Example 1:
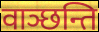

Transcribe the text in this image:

वाञ्छन्ति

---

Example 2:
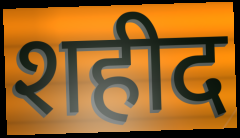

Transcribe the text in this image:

शहीद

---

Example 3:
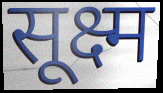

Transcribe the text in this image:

सूक्ष्म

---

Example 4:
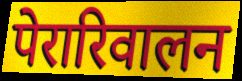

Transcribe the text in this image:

पेरारिवालन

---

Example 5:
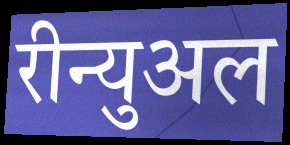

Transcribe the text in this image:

रीन्युअल